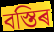
বস্তিৰ